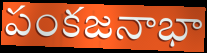
పంకజనాభా